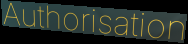
Authorisation